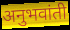
अनुभवांती